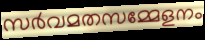
സർവമതസമ്മേളനം